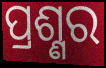
ପ୍ରଶ୍ଣର